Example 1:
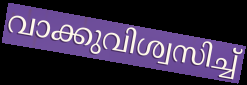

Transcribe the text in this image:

വാക്കുവിശ്വസിച്ച്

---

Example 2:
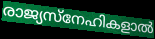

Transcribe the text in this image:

രാജ്യസ്നേഹികളാൽ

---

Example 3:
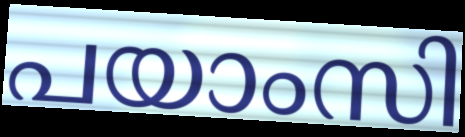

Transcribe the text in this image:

പയാംസി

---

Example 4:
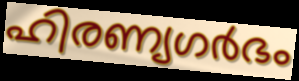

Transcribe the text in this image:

ഹിരണ്യഗർഭം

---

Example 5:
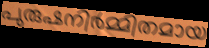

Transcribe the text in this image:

പുരുഷനിർമ്മിതമായ